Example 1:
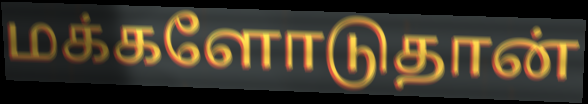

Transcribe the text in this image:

மக்களோடுதான்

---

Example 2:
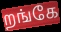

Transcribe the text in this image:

றங்கே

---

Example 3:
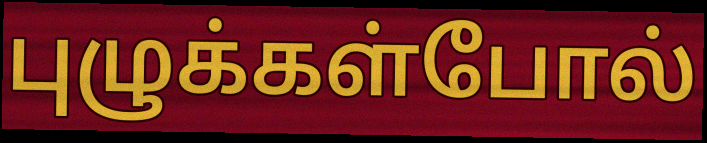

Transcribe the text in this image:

புழுக்கள்போல்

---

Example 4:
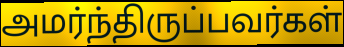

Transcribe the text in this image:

அமர்ந்திருப்பவர்கள்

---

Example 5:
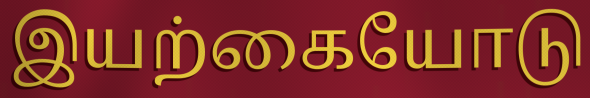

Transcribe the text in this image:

இயற்கையோடு